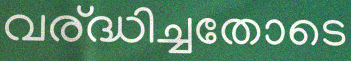
വര്ദ്ധിച്ചതോടെ